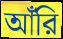
আঁরি